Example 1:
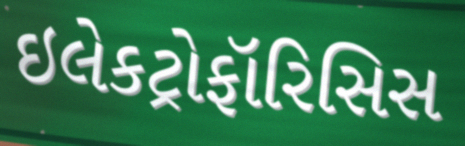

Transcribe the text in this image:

ઇલેકટ્રોફૉરિસિસ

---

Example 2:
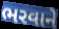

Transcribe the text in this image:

ભરવાને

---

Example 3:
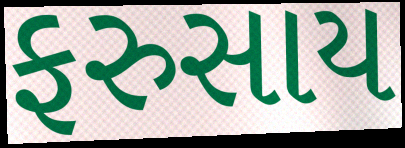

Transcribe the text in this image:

ફરુસાય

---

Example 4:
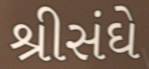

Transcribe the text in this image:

શ્રીસંઘે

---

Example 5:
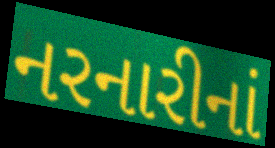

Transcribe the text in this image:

નરનારીનાં